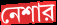
নেশার